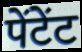
पेंटेंट